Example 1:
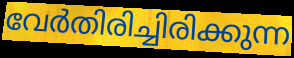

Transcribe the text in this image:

വേർതിരിച്ചിരിക്കുന്ന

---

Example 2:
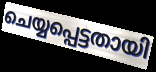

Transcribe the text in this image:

ചെയ്യപ്പെട്ടതായി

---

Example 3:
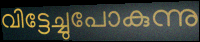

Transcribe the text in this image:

വിട്ടേച്ചുപോകുന്നു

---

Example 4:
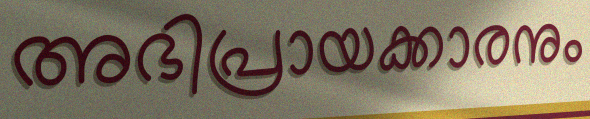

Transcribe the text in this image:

അഭിപ്രായക്കാരനും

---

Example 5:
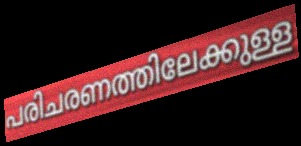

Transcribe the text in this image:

പരിചരണത്തിലേക്കുള്ള